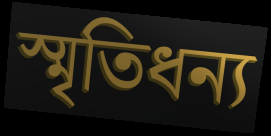
স্মৃতিধন্য